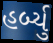
હર્બ્યુ